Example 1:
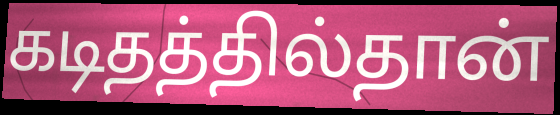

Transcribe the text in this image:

கடிதத்தில்தான்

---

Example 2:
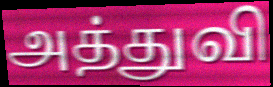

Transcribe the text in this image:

அத்துவி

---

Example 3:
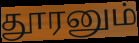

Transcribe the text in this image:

தூரனும்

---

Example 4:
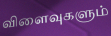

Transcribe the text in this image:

விளைவுகளும்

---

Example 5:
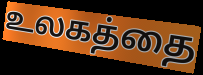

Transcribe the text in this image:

உலகத்தை